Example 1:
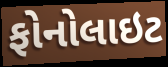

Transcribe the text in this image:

ફોનોલાઇટ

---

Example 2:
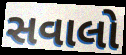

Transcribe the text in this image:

સવાલો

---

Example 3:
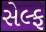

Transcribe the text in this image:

સેલ્ફ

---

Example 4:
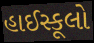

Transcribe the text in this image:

હાઈસ્કૂલો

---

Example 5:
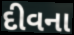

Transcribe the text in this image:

દીવના